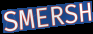
SMERSH